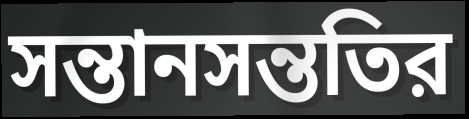
সন্তানসন্ততির